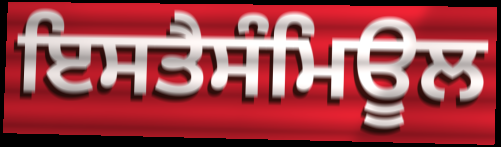
ਇਸਤੈਸੰਮਿਊਲ